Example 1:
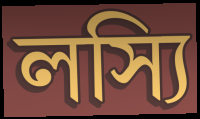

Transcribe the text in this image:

লস্যি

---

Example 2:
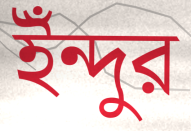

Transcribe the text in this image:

ইঁন্দুর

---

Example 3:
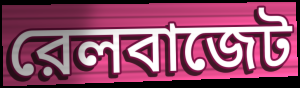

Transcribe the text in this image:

রেলবাজেট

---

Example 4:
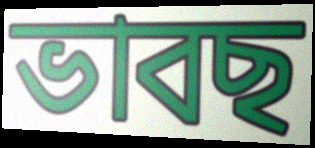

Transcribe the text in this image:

ভাবছ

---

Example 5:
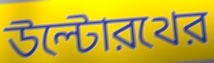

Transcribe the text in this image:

উল্টোরথের